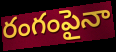
రంగంపైనా